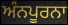
ਅੰਨਪੂਰਨਾ